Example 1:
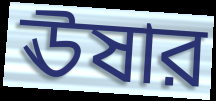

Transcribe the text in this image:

ঊষার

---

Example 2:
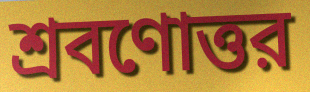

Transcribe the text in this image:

শ্রবণোত্তর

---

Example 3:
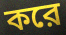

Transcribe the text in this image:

করে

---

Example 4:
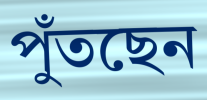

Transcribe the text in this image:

পুঁতছেন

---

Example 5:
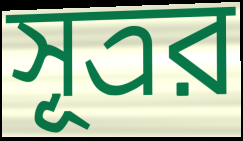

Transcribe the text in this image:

সূত্রর